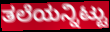
ತಲೆಯನ್ನಿಟ್ಟು